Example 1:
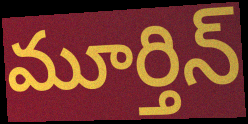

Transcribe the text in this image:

మూర్తిన్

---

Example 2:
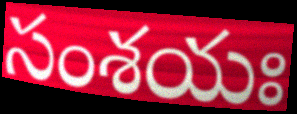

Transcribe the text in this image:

సంశయః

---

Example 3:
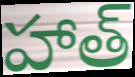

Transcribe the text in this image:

హాత్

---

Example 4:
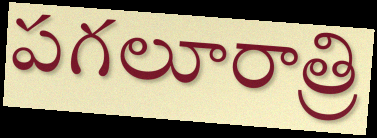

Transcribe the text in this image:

పగలూరాత్రి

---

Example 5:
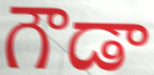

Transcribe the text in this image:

గౌడా